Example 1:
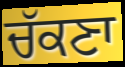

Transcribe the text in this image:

ਚੱਕਣਾ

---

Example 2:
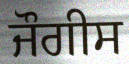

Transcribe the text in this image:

ਜੌਗੀਸ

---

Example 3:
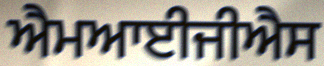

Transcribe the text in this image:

ਐਮਆਈਜੀਐਸ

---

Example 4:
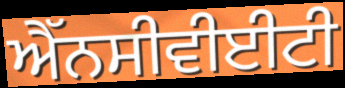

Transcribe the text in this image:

ਐੱਨਸੀਵੀਈਟੀ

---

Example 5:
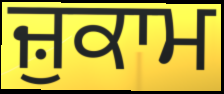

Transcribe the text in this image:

ਜ਼ੁਕਾਮ